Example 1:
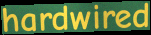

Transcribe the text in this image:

hardwired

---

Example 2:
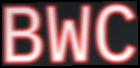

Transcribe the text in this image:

BWC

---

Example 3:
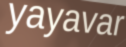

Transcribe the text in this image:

yayavar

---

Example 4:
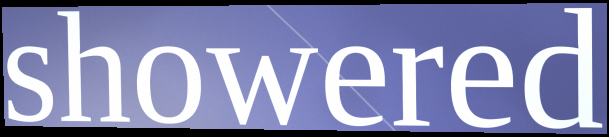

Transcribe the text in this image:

showered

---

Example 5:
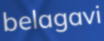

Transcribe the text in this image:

belagavi